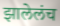
झालेलंच